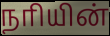
நரியின்